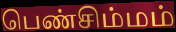
பெண்சிம்மம்